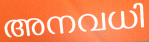
അനവധി